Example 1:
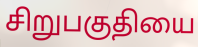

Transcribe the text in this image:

சிறுபகுதியை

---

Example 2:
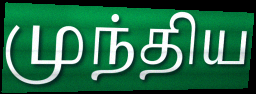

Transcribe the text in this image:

முந்திய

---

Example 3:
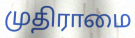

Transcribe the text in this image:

முதிராமை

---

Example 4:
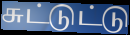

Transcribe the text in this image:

சுட்டுட்டு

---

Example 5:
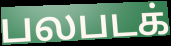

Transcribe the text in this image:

பலபடக்